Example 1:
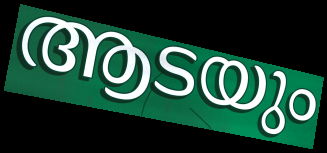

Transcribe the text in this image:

ആടയും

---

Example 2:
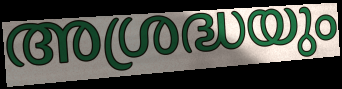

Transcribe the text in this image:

അശ്രദ്ധയും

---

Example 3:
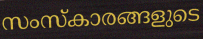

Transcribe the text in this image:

സംസ്കാരങ്ങളുടെ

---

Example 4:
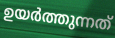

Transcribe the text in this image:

ഉയർത്തുന്നത്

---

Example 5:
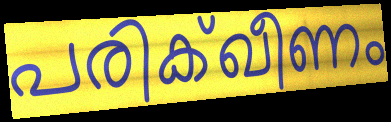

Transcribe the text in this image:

പരിക്ഖീണം